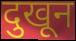
दुखून